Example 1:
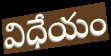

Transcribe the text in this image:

విధేయం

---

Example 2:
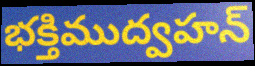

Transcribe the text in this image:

భక్తిముద్వహన్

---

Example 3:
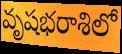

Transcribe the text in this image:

వృషభరాశిలో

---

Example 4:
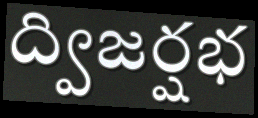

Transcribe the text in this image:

ద్విజర్షభ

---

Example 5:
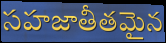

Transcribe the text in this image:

సహజాతీతమైన